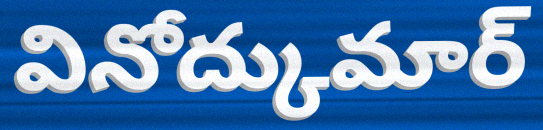
వినోద్కుమార్